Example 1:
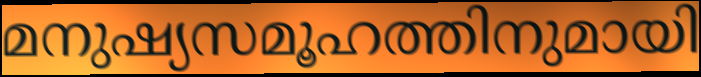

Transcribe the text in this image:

മനുഷ്യസമൂഹത്തിനുമായി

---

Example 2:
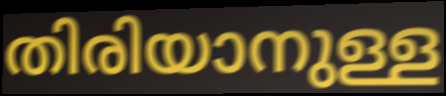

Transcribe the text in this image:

തിരിയാനുള്ള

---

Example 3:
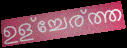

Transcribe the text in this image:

ഉള്ച്ചേര്ത്ത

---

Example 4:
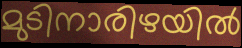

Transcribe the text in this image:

മുടിനാരിഴയിൽ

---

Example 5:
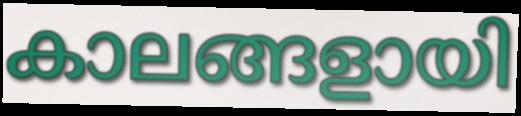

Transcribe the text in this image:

കാലങ്ങളായി